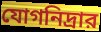
যোগনিদ্রার